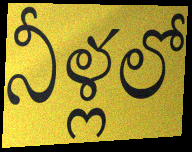
నీళ్లలో